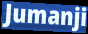
Jumanji